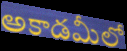
అకాడమీలో